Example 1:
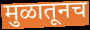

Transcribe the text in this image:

मुळातूनच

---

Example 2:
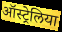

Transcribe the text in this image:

ऑस्ट्रेलिया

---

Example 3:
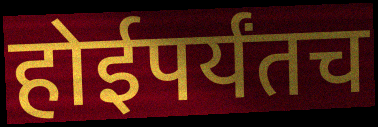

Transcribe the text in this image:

होईपर्यंतच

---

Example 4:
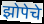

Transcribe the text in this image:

झोपेचे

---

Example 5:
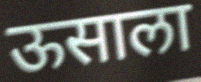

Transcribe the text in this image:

ऊसाला